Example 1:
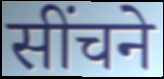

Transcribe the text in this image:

सींचने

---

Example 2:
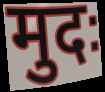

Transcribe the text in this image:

मुदः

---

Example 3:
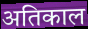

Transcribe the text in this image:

अतिकाल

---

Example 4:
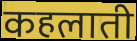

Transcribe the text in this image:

कहलाती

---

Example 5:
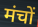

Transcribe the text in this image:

मंचों